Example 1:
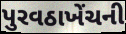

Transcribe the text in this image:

પુરવઠાખેંચની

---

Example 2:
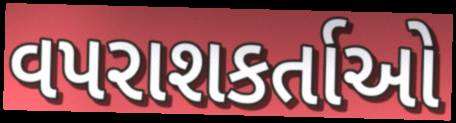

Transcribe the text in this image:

વપરાશકર્તાઓ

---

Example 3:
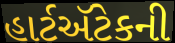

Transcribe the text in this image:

હાર્ટઍટેકની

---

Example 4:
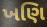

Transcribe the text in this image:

ખણિ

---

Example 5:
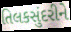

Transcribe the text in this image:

તિલકસુંદરીને